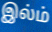
இல்ம்